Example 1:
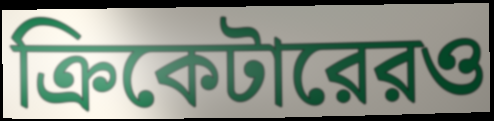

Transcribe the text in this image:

ক্রিকেটারেরও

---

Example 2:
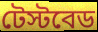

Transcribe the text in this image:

টেস্টবেড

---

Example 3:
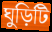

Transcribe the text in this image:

ঘুড়িটি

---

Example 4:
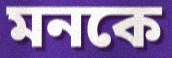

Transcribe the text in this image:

মনকে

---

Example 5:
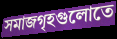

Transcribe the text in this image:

সমাজগৃহগুলোতে